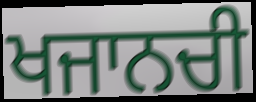
ਖਜਾਨਚੀ